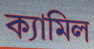
ক্যামিল